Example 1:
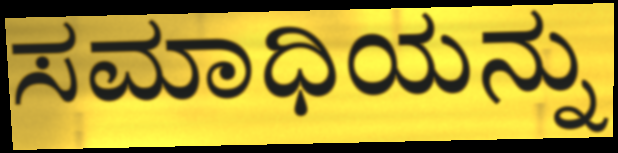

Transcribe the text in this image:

ಸಮಾಧಿಯನ್ನು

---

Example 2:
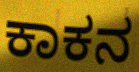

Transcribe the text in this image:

ಕಾಕನ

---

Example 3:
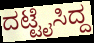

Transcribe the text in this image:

ದಟ್ಟೈಸಿದ್ದ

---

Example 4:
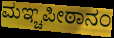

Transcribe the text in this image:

ಮಞ್ಚಪೀಠಾನಂ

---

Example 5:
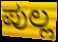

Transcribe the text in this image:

ಪುಲ್ಲ